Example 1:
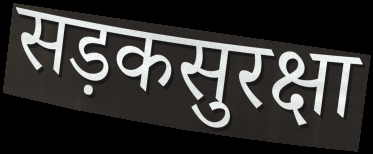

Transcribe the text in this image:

सड़कसुरक्षा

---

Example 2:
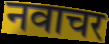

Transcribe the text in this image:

नवाचर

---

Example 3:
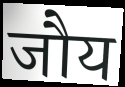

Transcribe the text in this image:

जौय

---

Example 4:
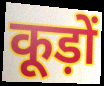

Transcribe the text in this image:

कूड़ों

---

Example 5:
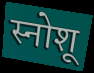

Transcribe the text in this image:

स्नोशू